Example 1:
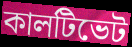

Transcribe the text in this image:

কালটিভেট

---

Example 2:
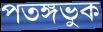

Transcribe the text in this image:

পতঙ্গভুক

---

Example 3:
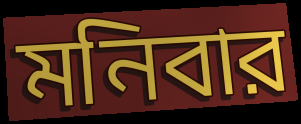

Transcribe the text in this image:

মনিবার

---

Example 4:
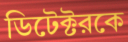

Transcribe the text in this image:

ডিটেক্টরকে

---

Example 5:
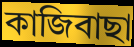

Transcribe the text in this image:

কাজিবাছা